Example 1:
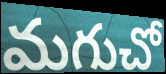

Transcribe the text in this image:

మగుచో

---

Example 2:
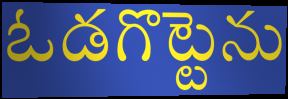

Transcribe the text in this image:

ఓడగొట్టెను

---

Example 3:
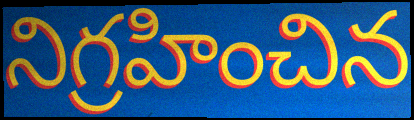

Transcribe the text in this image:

నిగ్రహించిన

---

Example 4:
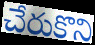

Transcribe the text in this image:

చేరుకొని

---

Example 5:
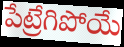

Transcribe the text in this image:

పేట్రేగిపోయే